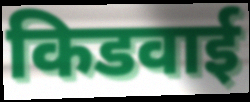
किडवाई